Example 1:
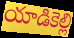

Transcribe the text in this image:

యాడికెల్లి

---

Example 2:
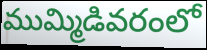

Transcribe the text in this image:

ముమ్మిడివరంలో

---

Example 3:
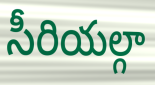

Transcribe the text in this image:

సీరియల్గా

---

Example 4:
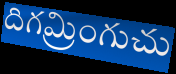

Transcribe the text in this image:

దిగమ్రింగుచు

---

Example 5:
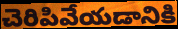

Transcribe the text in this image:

చెరిపివేయడానికి